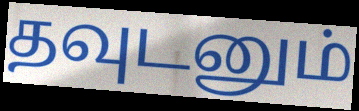
தவுடனும்